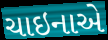
ચાઇનાએ